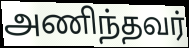
அணிந்தவர்